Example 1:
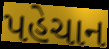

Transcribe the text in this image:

પહેચાન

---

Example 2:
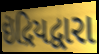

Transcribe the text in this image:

ઇંદ્રિયદ્વારા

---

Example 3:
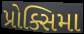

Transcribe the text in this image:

પ્રોક્સિમા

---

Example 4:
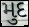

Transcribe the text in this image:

મુદ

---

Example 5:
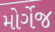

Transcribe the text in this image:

મોર્ગેજ